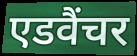
एडवैंचर